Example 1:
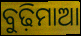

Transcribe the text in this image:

ବୁଢ଼ିମାଆ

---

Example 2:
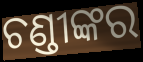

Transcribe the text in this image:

ଚଣ୍ଡୀଙ୍କର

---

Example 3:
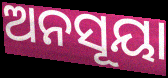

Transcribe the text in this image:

ଅନସୂୟା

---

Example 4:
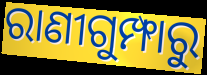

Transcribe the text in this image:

ରାଣୀଗୁମ୍ଫାରୁ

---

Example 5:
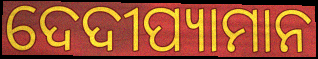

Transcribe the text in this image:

ଦେଦୀପ୍ୟାମାନ